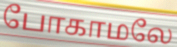
போகாமலே